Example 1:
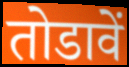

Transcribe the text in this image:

तोडावें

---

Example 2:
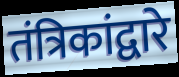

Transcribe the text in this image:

तंत्रिकांद्वारे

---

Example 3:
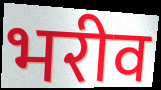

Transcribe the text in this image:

भरीव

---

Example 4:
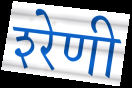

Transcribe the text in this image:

श्रेणी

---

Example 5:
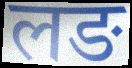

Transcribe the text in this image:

लङ